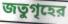
জতুগৃহের